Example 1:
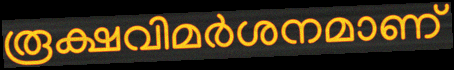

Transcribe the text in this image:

രൂക്ഷവിമർശനമാണ്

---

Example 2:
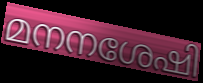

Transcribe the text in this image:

മനനശേഷി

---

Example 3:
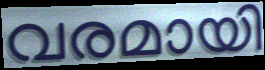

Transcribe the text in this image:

വരമായി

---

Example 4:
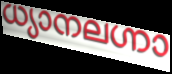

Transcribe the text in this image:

ധ്യാനലഗ്നാ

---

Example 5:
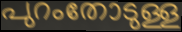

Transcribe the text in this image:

പുറംതോടുള്ള